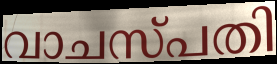
വാചസ്പതി